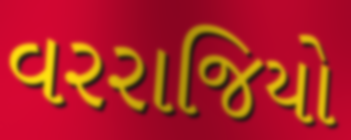
વરરાજિયો